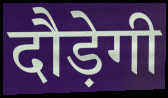
दौड़ेगी